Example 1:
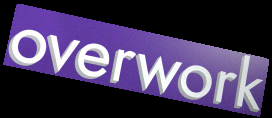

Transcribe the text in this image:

overwork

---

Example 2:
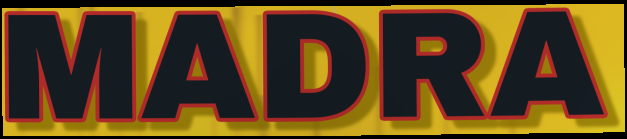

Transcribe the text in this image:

MADRA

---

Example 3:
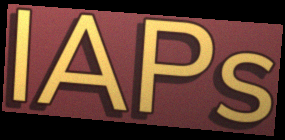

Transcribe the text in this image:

IAPs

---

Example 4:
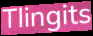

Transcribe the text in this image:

Tlingits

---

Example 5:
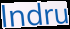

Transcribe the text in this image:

Indru